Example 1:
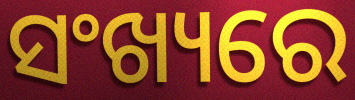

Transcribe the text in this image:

ସଂଖ୍ୟରେ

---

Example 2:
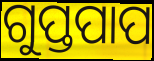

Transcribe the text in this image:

ଗୁପ୍ତପାପ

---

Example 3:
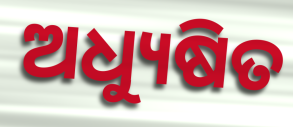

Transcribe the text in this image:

ଅଧ୍ୟୁଷିତ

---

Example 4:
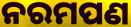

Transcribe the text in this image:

ନରମପଣ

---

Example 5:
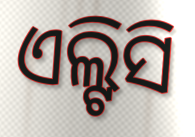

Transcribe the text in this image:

ଏଲ୍ଟିସି